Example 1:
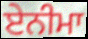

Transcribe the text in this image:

ਏਨੀਮਾ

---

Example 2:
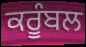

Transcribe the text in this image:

ਕਰੂੰਬਲ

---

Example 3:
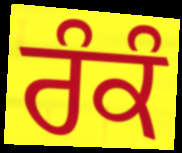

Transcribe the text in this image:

ਰੰਕੰ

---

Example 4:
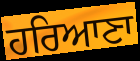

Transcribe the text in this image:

ਹਰਿਆਣਾ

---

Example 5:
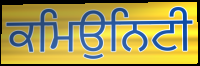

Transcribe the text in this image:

ਕਮਿਉਨਿਟੀ